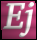
Ej